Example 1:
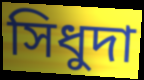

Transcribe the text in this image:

সিধুদা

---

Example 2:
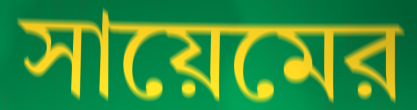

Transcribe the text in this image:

সায়েমের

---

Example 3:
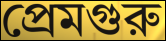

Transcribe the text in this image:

প্রেমগুরু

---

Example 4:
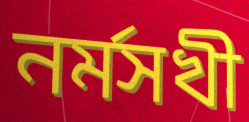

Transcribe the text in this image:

নর্মসখী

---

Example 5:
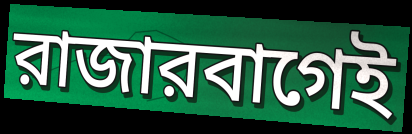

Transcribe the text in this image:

রাজারবাগেই